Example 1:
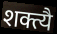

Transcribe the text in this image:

शक्त्यै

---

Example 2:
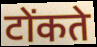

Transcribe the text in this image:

टोंकते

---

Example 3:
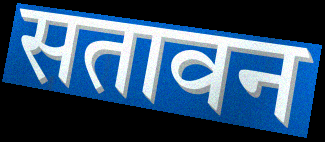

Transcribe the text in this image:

सतावन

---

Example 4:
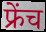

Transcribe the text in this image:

फ्रेंच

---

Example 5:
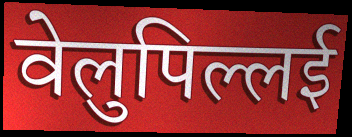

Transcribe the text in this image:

वेलुपिल्लई